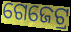
ଗେଜେଟ୍ର